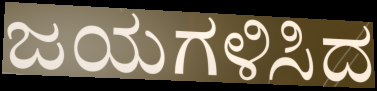
ಜಯಗಳಿಸಿದ